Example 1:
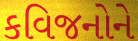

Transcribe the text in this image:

કવિજનોને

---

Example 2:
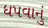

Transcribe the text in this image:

ધપવાનું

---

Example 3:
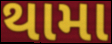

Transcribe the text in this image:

થામા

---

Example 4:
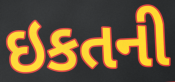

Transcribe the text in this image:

ઇકતની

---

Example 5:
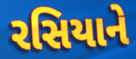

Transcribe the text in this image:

રસિયાને